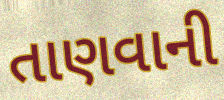
તાણવાની